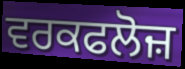
ਵਰਕਫਲੋਜ਼